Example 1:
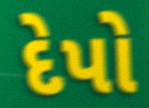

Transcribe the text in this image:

દેપો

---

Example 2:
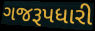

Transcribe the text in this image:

ગજરૂપધારી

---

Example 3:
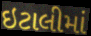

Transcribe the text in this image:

ઇટાલીમાં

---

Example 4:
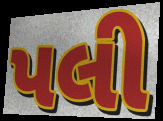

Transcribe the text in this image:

પલી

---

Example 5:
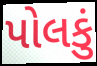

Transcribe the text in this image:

પોલકું